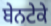
ਬੇਨਟੇਕੇ